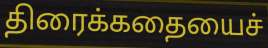
திரைக்கதையைச்